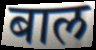
बाल